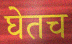
घेतच